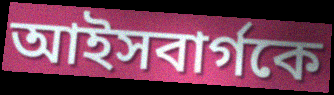
আইসবার্গকে